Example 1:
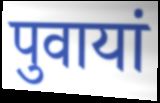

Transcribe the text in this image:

पुवायां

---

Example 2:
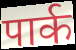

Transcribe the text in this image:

पार्क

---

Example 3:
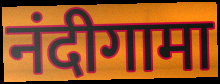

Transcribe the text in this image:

नंदीगामा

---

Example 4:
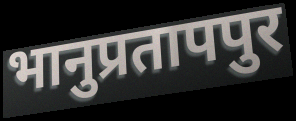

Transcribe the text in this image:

भानुप्रतापपुर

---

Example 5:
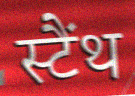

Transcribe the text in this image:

स्टैंथ